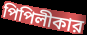
পিপিলীকার